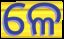
ଳେ